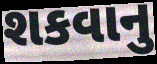
શકવાનુ